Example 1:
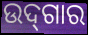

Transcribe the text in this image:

ଉଦ୍‌ଗାର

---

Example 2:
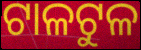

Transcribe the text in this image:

ଟାଳଟୁଳ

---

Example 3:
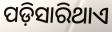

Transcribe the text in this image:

ପଡ଼ିସାରିଥାଏ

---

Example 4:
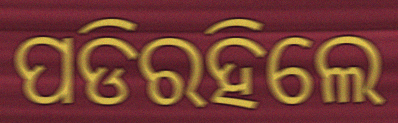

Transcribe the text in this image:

ପଡିରହିଲେ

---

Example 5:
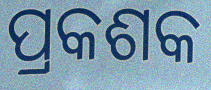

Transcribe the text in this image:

ପ୍ରକଶକ